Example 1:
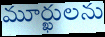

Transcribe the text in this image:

మూర్ఖులను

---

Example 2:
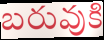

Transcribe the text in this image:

బరువుకి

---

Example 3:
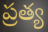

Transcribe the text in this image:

ప్రత్య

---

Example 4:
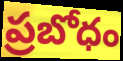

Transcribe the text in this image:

ప్రబోధం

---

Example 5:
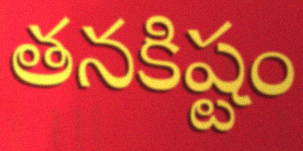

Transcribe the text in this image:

తనకిష్టం